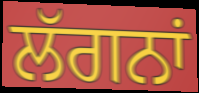
ਲੱਗਨਾਂ